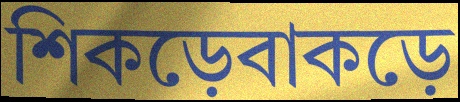
শিকড়েবাকড়ে